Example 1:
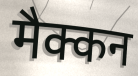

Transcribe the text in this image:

मैक्कन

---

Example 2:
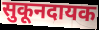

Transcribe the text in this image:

सुकूनदायक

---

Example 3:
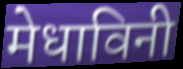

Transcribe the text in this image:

मेधाविनी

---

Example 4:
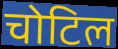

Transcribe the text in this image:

चोटिल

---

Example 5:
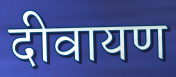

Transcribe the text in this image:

दीवायण